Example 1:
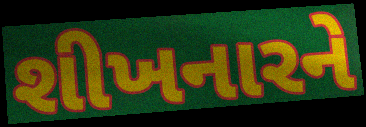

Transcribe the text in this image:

શીખનારને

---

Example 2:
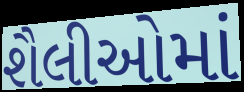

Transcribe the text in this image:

શૈલીઓમાં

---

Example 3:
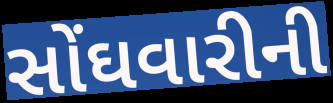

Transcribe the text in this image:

સોંઘવારીની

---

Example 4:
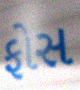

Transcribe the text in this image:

ફોસ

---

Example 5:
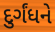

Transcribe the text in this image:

દુર્ગંધને